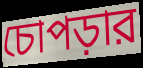
চোপড়ার